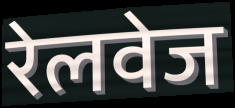
रेलवेज